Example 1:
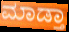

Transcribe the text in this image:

ಮಾಡ್ತಾ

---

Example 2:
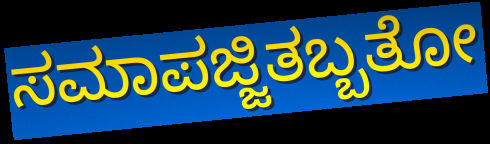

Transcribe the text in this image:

ಸಮಾಪಜ್ಜಿತಬ್ಬತೋ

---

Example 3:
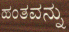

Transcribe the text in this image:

ಹಂತವನ್ನು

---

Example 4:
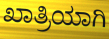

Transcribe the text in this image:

ಖಾತ್ರಿಯಾಗಿ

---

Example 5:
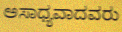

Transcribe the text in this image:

ಅಸಾಧ್ಯವಾದವರು